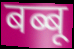
बब्बू